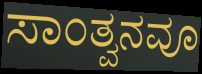
ಸಾಂತ್ವನವೂ